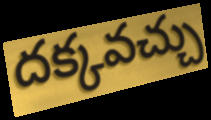
దక్కవచ్చు